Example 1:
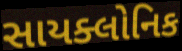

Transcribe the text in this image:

સાયક્લોનિક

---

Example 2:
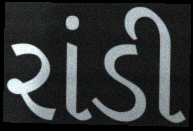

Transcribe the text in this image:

રાંડી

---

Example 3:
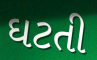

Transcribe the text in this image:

ઘટતી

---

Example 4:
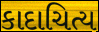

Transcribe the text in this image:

કાદાચિત્ય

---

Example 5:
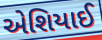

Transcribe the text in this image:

એશિયાઈ